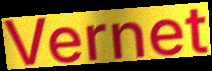
Vernet